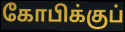
கோபிக்குப்